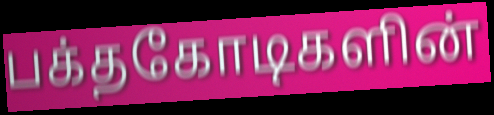
பக்தகோடிகளின்